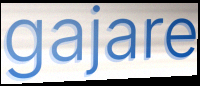
gajare